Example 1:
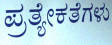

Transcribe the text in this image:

ಪ್ರತ್ಯೇಕತೆಗಳು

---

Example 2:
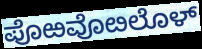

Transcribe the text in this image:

ಪೊಱವೊೞಲೊಳ್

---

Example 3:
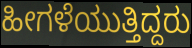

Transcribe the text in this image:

ಹೀಗಳೆಯುತ್ತಿದ್ದರು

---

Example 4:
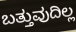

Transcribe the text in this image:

ಬತ್ತುವುದಿಲ್ಲ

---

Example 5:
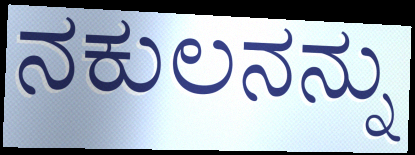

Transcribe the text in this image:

ನಕುಲನನ್ನು